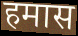
हमास